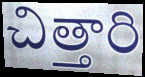
చిత్తారి